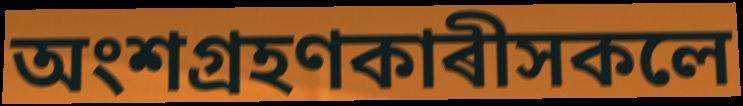
অংশগ্ৰহণকাৰীসকলে